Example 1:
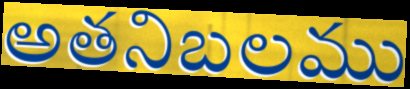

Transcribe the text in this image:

అతనిబలము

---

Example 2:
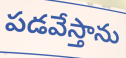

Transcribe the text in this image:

పడవేస్తాను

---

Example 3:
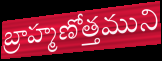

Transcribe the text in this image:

బ్రాహ్మణోత్తముని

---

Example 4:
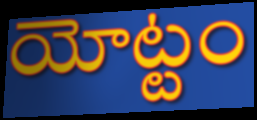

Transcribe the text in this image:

యోట్టం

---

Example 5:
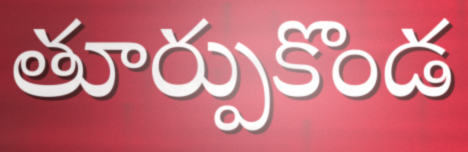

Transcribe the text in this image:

తూర్పుకొండ